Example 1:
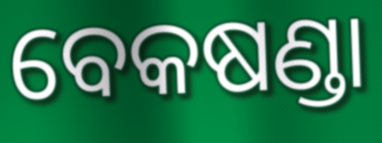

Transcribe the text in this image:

ବେକଷଣ୍ଡା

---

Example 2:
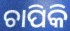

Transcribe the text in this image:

ଚାପିକି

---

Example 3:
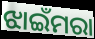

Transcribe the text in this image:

ଝାଇଁମରା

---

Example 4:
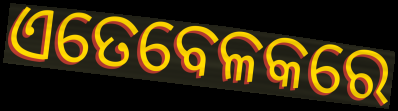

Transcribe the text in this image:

ଏତେବେଳକରେ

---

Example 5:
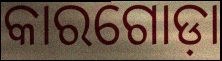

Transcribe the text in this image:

କାରଗୋଡ଼ା